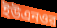
ইউএনওর